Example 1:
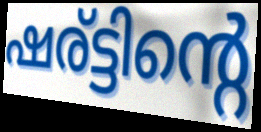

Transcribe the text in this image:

ഷര്ട്ടിന്റെ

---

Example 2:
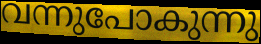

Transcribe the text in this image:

വന്നുപോകുന്നു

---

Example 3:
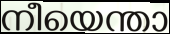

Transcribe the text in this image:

നീയെന്താ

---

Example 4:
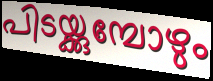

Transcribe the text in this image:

പിടയ്ക്കുമ്പോഴും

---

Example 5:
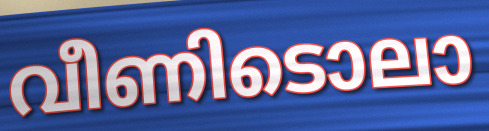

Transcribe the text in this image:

വീണിടൊലാ